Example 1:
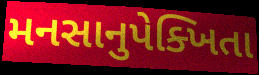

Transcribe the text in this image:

મનસાનુપેક્ખિતા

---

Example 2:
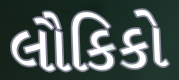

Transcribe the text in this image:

લૌકિકો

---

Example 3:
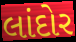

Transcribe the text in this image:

લાંદોર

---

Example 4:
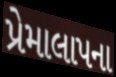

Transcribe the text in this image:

પ્રેમાલાપના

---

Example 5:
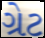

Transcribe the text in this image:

ગ્રેટ